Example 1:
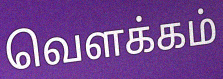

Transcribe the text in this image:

வெளக்கம்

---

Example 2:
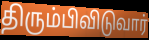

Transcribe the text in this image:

திரும்பிவிடுவார்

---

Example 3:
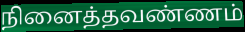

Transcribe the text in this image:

நினைத்தவண்ணம்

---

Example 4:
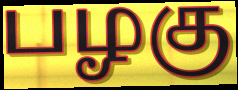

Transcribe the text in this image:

பழகு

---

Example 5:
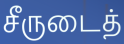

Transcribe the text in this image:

சீருடைத்